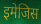
इमेजिस